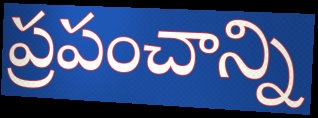
ప్రపంచాన్ని